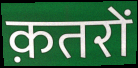
क़तरों